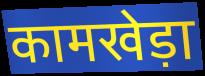
कामखेड़ा